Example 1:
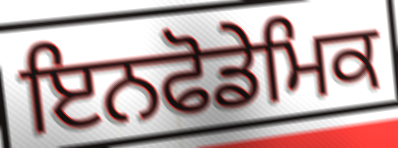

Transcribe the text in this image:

ਇਨਫੋਡੇਮਿਕ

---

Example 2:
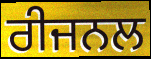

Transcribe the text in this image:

ਰੀਜਨਲ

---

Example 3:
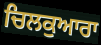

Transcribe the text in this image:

ਚਿਲਕੁਆਰਾ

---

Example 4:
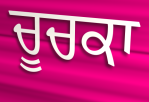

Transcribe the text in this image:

ਚੂਚਕਾ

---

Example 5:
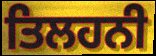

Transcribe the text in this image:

ਤਿਲਹਨੀ